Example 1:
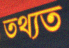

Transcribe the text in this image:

তথ্যত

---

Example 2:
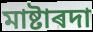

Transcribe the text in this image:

মাষ্টাৰদা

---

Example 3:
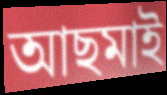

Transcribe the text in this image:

আছমাই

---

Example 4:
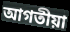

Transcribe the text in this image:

আগতীয়া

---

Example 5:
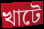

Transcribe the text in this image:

খাটে